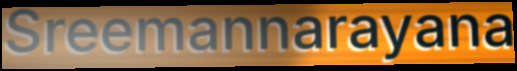
Sreemannarayana